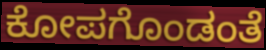
ಕೋಪಗೊಂಡಂತೆ